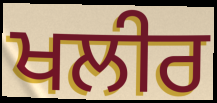
ਖਲੀਰ